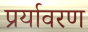
प्रर्यावरण